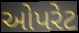
ઓપરેટ